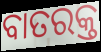
ବାତରକ୍ତ